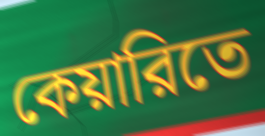
কেয়ারিতে